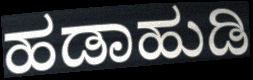
ಹಡಾಹುಡಿ